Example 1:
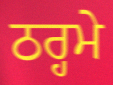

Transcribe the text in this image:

ਠਰ੍ਹਮੇ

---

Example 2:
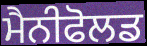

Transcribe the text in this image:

ਮੈਨੀਫੋਲਡ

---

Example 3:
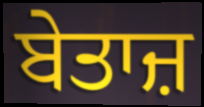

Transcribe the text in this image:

ਬੇਤਾਜ਼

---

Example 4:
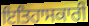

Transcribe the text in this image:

ਇਤਿਹਾਸਕਾਰੀ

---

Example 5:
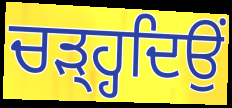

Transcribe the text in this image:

ਚੜ੍ਹ੍ਹਦਿਉਂ